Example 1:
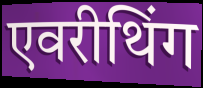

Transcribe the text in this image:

एवरीथिंग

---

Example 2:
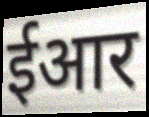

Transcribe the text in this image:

ईआर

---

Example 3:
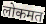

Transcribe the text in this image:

लोकमत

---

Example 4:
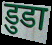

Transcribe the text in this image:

डुडा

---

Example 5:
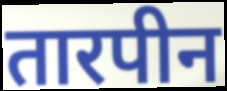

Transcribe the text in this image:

तारपीन